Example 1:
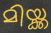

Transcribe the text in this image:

മിയ്ക്ക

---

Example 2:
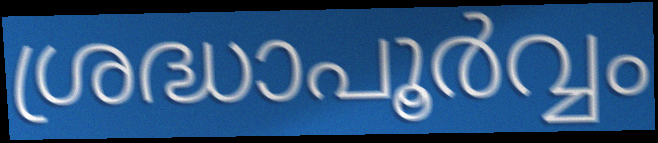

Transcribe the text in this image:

ശ്രദ്ധാപൂർവ്വം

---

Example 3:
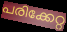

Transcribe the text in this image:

പരിക്കേറ്റ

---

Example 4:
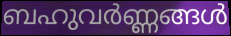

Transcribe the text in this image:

ബഹുവർണ്ണങ്ങൾ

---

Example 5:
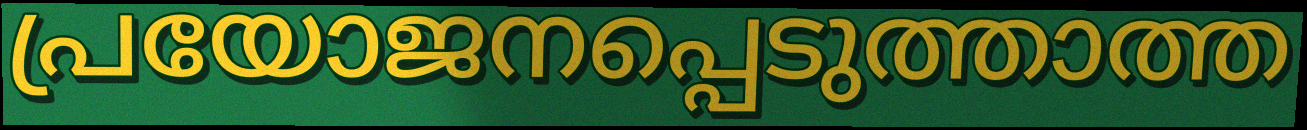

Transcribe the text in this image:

പ്രയോജനപ്പെടുത്താത്ത